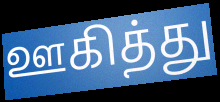
ஊகித்து